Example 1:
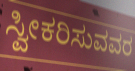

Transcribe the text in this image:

ಸ್ವೀಕರಿಸುವವರ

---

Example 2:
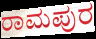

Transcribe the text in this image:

ರಾಮಪುರ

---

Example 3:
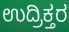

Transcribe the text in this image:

ಉದ್ರಿಕ್ತರ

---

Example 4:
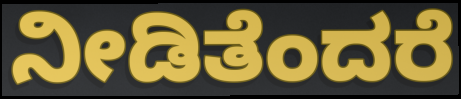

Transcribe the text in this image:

ನೀಡಿತೆಂದರೆ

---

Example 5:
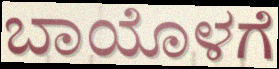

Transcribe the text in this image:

ಬಾಯೊಳಗೆ